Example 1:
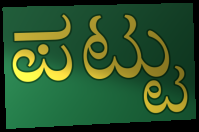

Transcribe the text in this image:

ಪಟ್ಟು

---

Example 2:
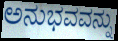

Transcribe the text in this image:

ಅನುಭವವನ್ನು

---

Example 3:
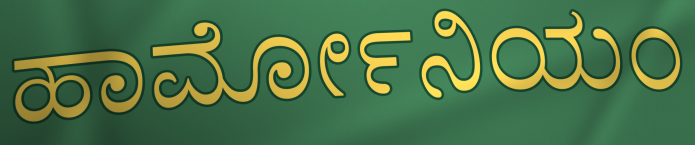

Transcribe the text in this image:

ಹಾರ್ಮೋನಿಯಂ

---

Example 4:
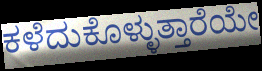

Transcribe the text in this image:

ಕಳೆದುಕೊಳ್ಳುತ್ತಾರೆಯೇ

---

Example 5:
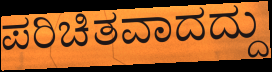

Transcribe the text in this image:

ಪರಿಚಿತವಾದದ್ದು